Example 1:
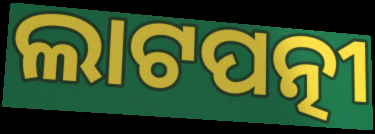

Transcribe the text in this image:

ଲାଟପତ୍ନୀ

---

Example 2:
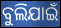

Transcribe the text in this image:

ବୁଲିଯାଇଁ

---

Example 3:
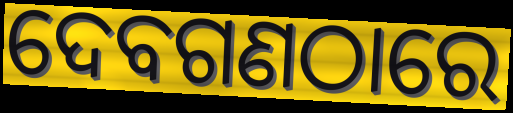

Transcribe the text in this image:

ଦେବଗଣଠାରେ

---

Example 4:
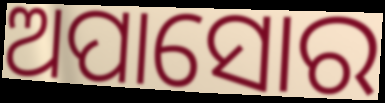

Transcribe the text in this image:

ଅପାସୋର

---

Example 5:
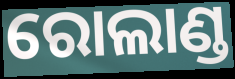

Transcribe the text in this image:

ରୋଲାଣ୍ଡ